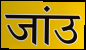
जांउ